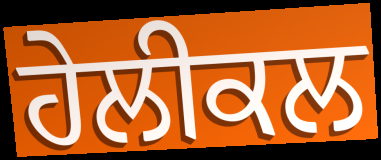
ਹੇਲੀਕਲ